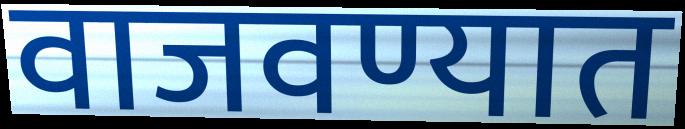
वाजवण्यात